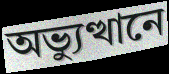
অভ্যুত্থানে